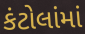
કંટોલાંમાં